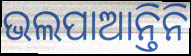
ଭଲପାଆନ୍ତିନି